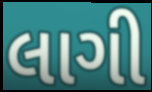
લાગી